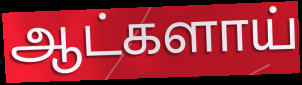
ஆட்களாய்